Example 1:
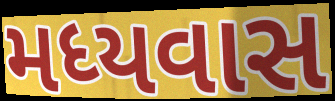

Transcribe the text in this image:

મધ્યવાસ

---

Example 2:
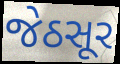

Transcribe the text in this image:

જેઠસૂર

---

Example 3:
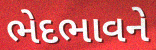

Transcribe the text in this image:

ભેદભાવને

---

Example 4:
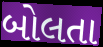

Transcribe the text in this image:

બોલતા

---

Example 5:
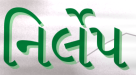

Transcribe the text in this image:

નિર્લેપ